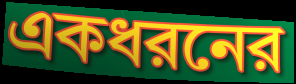
একধরনের